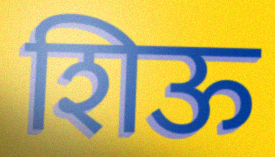
शिऊ